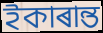
ইকাৰান্ত